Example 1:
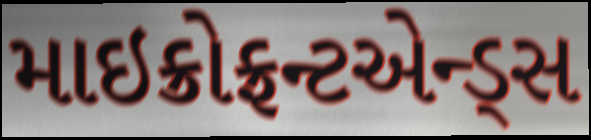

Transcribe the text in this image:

માઇક્રોફ્રન્ટએન્ડ્સ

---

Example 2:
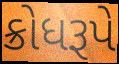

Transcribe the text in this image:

ક્રોધરૂપે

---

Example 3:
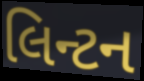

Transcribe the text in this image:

લિન્ટન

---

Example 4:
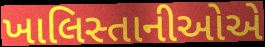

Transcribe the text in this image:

ખાલિસ્તાનીઓએ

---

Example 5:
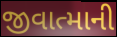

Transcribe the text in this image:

જીવાત્માની